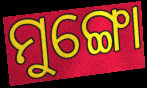
ମୁଙ୍ଗୋ